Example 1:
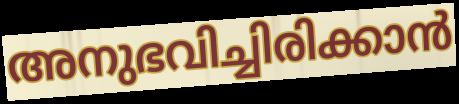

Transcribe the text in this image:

അനുഭവിച്ചിരിക്കാൻ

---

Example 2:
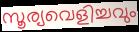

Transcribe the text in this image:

സൂര്യവെളിച്ചവും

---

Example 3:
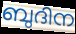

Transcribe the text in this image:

ബുദിന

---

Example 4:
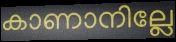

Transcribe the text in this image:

കാണാനില്ലേ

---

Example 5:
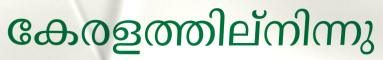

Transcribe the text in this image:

കേരളത്തില്നിന്നു